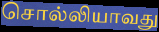
சொல்லியாவது